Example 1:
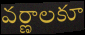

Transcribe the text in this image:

వర్ణాలకూ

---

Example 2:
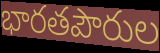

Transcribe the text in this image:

భారతపౌరుల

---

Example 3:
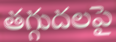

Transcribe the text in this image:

తగ్గుదలపై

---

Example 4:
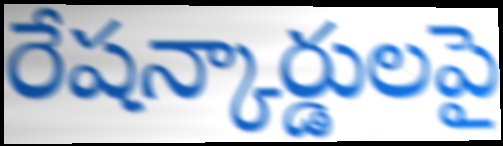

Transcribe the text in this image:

రేషన్కార్డులపై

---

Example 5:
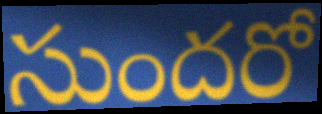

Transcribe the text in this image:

సుందరో